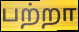
பற்றா